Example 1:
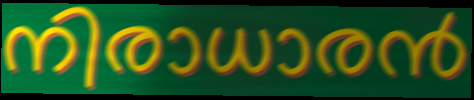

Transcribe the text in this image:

നിരാധാരൻ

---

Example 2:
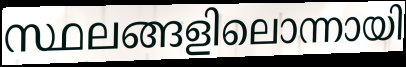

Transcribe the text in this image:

സ്ഥലങ്ങളിലൊന്നായി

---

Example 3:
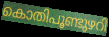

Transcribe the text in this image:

കൊതിപൂണ്ടുഴറി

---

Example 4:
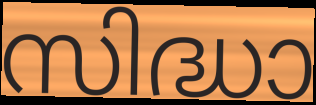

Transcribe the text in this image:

സിദ്ധാ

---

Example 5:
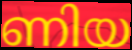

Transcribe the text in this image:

ണിയ